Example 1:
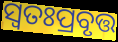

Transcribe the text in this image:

ସ୍ବତଃପ୍ରବୃତ୍ତ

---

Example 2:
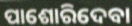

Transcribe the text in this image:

ପାଶୋରିଦେବା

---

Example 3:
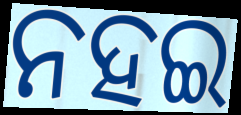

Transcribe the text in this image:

ନହଇ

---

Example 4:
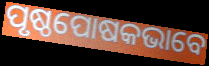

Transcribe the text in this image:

ପୃଷ୍ଠପୋଷକଭାବେ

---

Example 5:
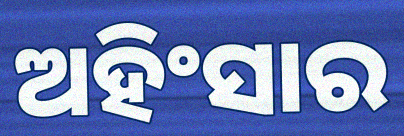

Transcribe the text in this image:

ଅହିଂସାର